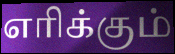
எரிக்கும்